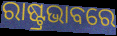
ରାଷ୍ଟ୍ରଭାବରେ